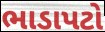
ભાડાપટો